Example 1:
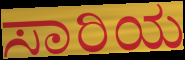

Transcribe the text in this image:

ಸಾರಿಯ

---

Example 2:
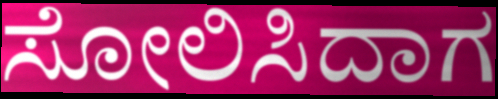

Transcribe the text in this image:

ಸೋಲಿಸಿದಾಗ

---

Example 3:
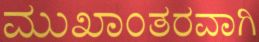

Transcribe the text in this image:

ಮುಖಾಂತರವಾಗಿ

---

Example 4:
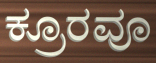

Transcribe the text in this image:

ಕ್ರೂರವೂ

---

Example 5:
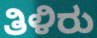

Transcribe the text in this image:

ತಿಳಿರು